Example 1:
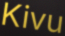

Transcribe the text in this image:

Kivu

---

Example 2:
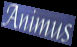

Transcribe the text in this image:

Animus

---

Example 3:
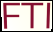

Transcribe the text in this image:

FTI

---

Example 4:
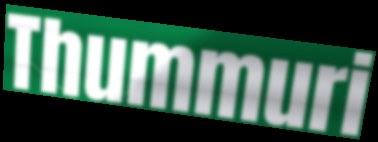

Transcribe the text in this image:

Thummuri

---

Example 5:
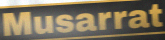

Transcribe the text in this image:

Musarrat